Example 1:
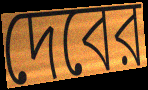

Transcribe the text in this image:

দেবের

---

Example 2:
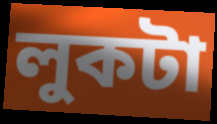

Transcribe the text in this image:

লুকটা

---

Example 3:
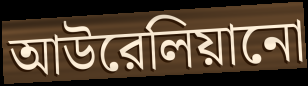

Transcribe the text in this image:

আউরেলিয়ানো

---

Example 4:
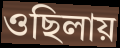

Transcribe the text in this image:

ওছিলায়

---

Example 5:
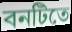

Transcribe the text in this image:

বনটিতে